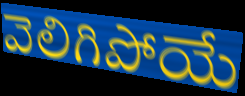
వెలిగిపోయే